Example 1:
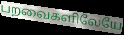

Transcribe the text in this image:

பறவைகளிலேயே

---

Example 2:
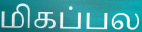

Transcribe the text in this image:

மிகப்பல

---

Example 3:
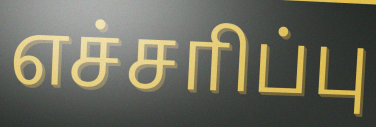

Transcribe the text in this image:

எச்சரிப்பு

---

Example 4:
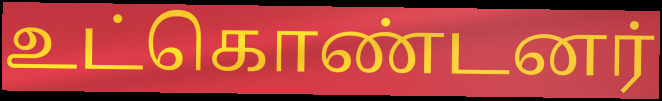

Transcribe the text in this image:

உட்கொண்டனர்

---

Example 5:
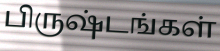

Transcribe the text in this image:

பிருஷ்டங்கள்